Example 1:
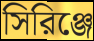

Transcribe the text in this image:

সিরিঞ্জে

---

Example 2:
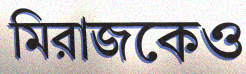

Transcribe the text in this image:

মিরাজকেও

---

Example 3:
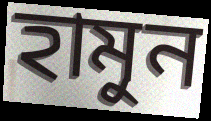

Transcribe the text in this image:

হামুন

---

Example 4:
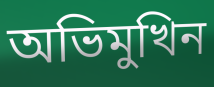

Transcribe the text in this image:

অভিমুখিন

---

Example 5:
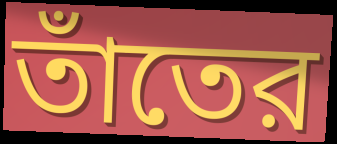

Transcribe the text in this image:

তাঁতের